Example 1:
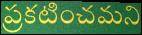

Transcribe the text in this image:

ప్రకటించమని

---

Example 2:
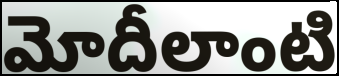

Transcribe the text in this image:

మోదీలాంటి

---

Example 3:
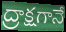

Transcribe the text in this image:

ద్రాక్షగానే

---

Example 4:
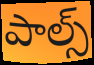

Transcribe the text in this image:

పాల్స్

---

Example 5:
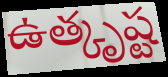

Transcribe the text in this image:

ఉత్కృష్ట